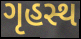
ગૃહસ્થ